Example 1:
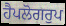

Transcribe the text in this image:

ਹੈਪਲੋਗਰੁਪ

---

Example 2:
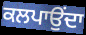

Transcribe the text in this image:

ਕਲਪਾਉਂਦਾ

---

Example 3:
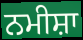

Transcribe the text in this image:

ਨਮੀਸ਼ਾ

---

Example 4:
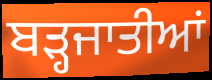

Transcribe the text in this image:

ਬੜ੍ਹਜਾਤੀਆਂ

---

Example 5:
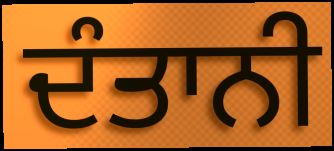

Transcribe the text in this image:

ਦੰਤਾਨੀ